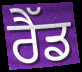
ਰੈੱਡ